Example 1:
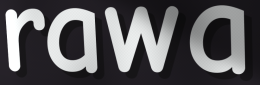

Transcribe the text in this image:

rawa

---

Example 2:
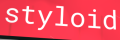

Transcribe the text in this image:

styloid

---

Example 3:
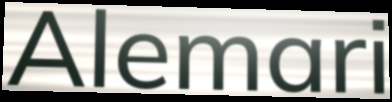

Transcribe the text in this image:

Alemari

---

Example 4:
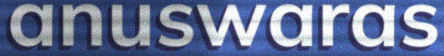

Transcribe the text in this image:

anuswaras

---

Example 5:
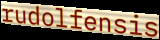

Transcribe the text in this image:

rudolfensis